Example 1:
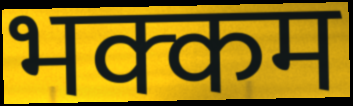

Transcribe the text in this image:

भक्‍कम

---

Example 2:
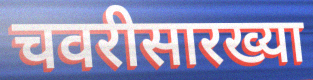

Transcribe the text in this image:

चवरीसारख्या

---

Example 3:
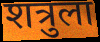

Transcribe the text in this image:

शत्रुला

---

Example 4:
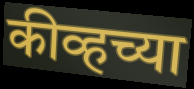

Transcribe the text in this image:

कीव्हच्या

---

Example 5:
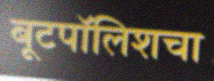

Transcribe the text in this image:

बूटपॉलिशचा